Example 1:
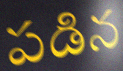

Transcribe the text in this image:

పడిన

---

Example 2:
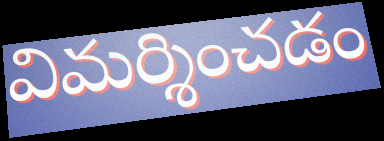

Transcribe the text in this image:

విమర్శించడం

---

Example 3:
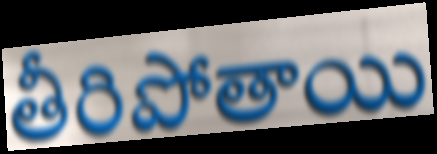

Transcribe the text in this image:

తీరిపోతాయి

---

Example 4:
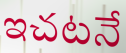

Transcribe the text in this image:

ఇచటనే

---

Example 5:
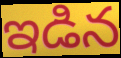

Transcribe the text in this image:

ఇడిన